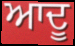
ਆਦੂ